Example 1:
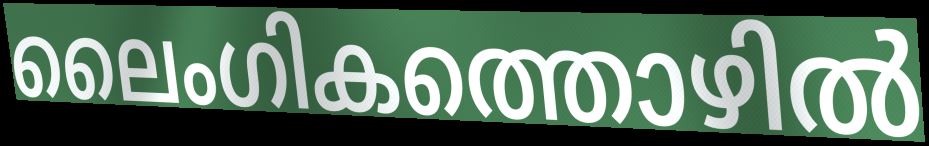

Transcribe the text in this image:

ലൈംഗികത്തൊഴിൽ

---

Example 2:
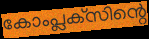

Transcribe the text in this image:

കോംപ്ലക്‌സിന്റെ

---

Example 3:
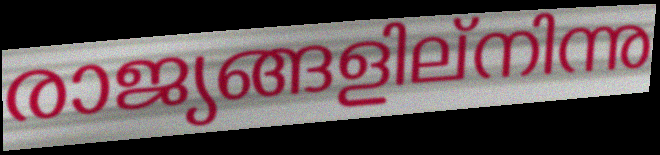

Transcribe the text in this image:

രാജ്യങ്ങളില്നിന്നു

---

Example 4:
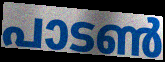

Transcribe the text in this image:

പാടൺ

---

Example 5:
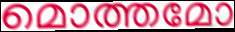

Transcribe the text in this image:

മൊത്തമോ